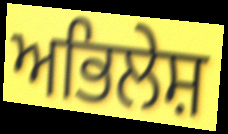
ਅਭਿਲੇਸ਼